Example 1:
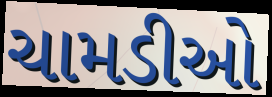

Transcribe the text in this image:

ચામડીઓ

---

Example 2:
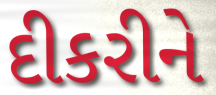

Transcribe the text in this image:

દીકરીને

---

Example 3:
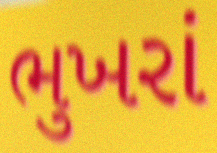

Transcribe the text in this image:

ભુખરાં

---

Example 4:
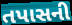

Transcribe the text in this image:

તપાસની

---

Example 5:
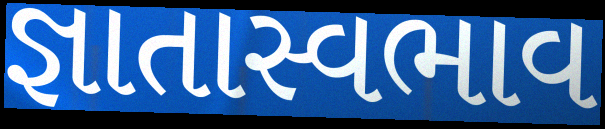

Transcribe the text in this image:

જ્ઞાતાસ્વભાવ